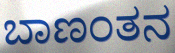
ಬಾಣಂತನ